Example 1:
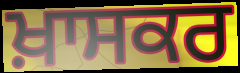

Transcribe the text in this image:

ਖ਼ਾਸਕਰ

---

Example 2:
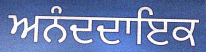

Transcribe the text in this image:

ਅਨੰਦਦਾਇਕ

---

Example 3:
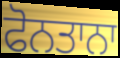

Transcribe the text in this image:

ਫੋਨਤਾਨਾ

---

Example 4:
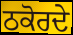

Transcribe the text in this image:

ਠਕੋਰਦੇ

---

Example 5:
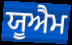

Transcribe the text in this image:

ਯੂਐਮ